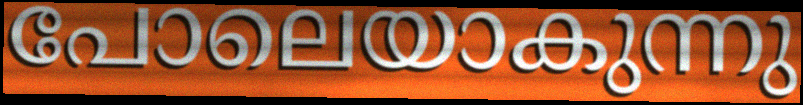
പോലെയാകുന്നു